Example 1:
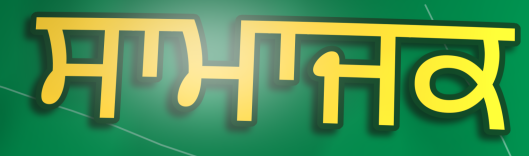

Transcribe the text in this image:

ਸਾਮਾਜਕ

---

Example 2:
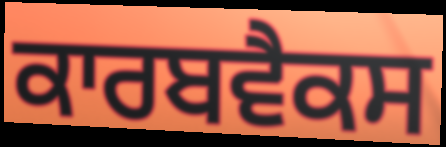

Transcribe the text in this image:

ਕਾਰਬਵੈਕਸ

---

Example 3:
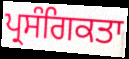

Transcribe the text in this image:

ਪ੍ਰਸੰਗਿਕਤਾ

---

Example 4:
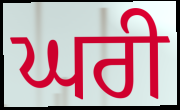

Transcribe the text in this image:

ਘਰੀ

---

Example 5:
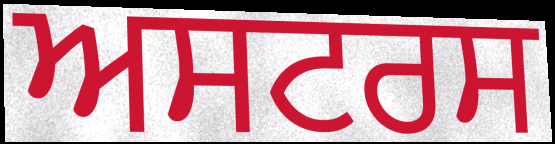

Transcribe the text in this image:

ਅਸਟਰਸ